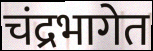
चंद्रभागेत